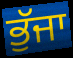
ਭੁੱਜਾ